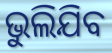
ଭୁଲିଯିବ